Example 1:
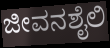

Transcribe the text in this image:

ಜೀವನಶೈಲಿ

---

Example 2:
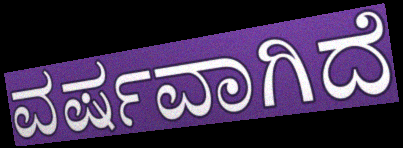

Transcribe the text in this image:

ವರ್ಷವಾಗಿದೆ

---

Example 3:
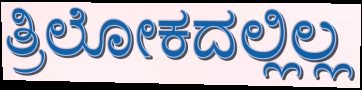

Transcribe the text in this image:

ತ್ರಿಲೋಕದಲ್ಲಿಲ್ಲ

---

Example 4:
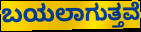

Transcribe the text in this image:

ಬಯಲಾಗುತ್ತವೆ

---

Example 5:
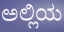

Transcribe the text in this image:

ಅಲ್ಲಿಯ